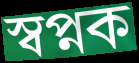
স্বপ্নক